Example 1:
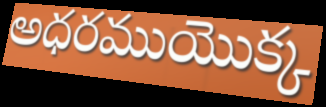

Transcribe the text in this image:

అధరముయొక్క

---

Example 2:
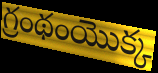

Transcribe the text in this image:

గ్రంథంయొక్క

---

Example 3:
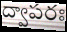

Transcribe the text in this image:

ద్వాపరః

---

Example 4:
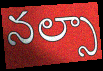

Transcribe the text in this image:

నల్సా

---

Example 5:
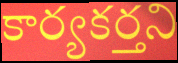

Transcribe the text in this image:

కార్యకర్తని